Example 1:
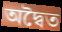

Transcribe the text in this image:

অদ্বৈত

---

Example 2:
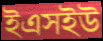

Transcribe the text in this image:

ইএসইউ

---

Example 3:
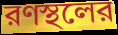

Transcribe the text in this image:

রণস্থলের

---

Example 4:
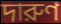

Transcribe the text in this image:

দারুণ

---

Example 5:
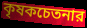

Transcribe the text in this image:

কৃষকচেতনার